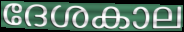
ദേശകാല